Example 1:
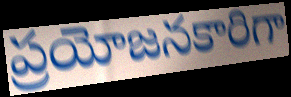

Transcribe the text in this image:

ప్రయోజనకారిగా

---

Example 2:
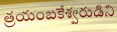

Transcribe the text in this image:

త్రయంబకేశ్వరుడిని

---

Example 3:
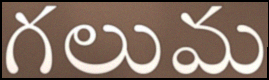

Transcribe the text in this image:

గలుమ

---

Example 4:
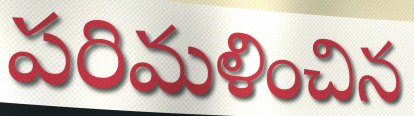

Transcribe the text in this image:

పరిమళించిన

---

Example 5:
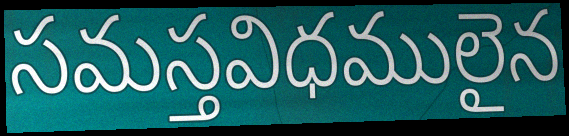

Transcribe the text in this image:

సమస్తవిధములైన